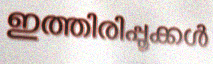
ഇത്തിരിപ്പൂക്കൾ